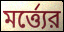
মর্ত্ত্যের